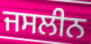
ਜਸਲੀਨ